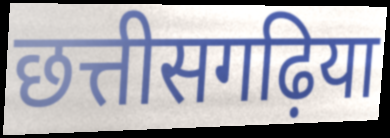
छत्तीसगढ़िया